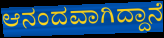
ಆನಂದವಾಗಿದ್ದಾನೆ